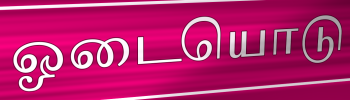
ஓடையொடு